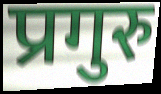
प्रगुरु